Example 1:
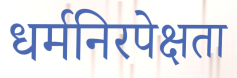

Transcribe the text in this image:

धर्मनिरपेक्षता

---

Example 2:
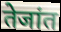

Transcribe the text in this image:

तेजांत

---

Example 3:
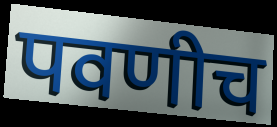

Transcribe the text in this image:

पवणीच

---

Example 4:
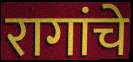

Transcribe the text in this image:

रागांचे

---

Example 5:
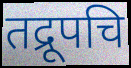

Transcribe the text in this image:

तद्रूपचि